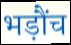
भड़ौंच